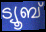
ട്യൂബ്